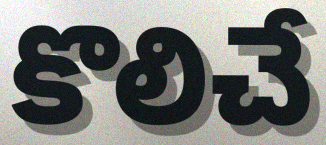
కొలిచే